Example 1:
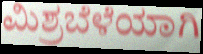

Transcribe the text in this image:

ಮಿಶ್ರಬೆಳೆಯಾಗಿ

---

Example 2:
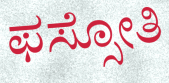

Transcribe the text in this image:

ಫಸ್ಸೋತಿ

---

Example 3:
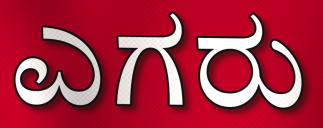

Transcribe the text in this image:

ಎಗರು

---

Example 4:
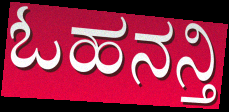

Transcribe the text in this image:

ಓಹನನ್ತಿ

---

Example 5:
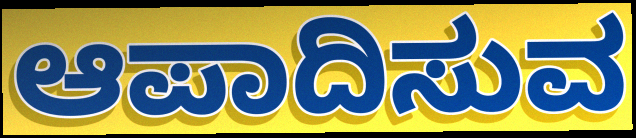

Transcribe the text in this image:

ಆಪಾದಿಸುವ